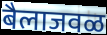
बैलाजवळ